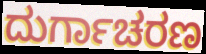
ದುರ್ಗಾಚರಣ